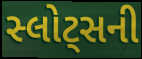
સ્લોટ્સની